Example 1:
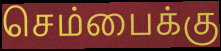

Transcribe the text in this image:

செம்பைக்கு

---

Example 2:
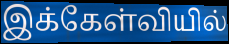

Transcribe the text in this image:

இக்கேள்வியில்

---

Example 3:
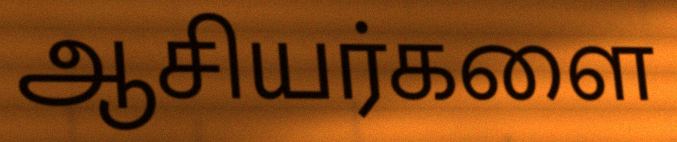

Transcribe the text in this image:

ஆசியர்களை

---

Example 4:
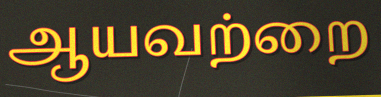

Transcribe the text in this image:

ஆயவற்றை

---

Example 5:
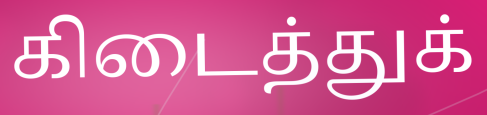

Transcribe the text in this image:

கிடைத்துக்